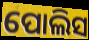
ପୋଲିସ